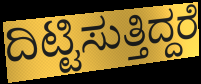
ದಿಟ್ಟಿಸುತ್ತಿದ್ದರೆ